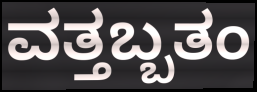
ವತ್ತಬ್ಬತಂ